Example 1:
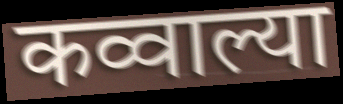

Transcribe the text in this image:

कव्वाल्या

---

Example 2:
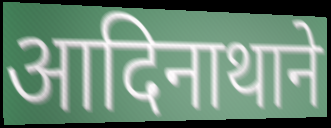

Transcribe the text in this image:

आदिनाथाने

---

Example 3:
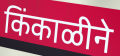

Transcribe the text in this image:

किंकाळीने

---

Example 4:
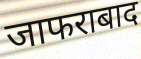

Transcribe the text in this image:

जाफराबाद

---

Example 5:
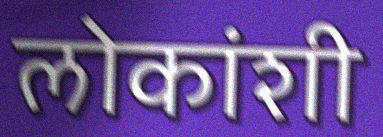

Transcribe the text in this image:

लोकांशी